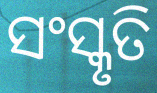
ସଂସ୍କୃତି